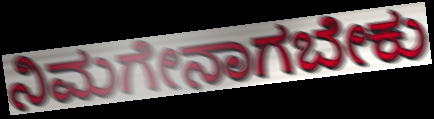
ನಿಮಗೇನಾಗಬೇಕು